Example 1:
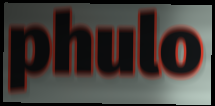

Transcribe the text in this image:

phulo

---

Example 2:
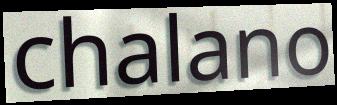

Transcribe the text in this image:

chalano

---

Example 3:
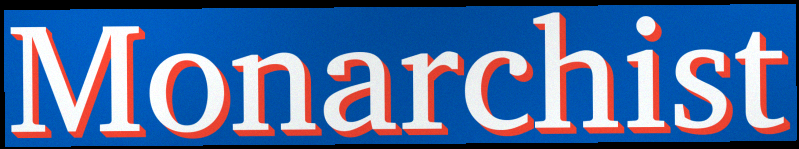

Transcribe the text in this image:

Monarchist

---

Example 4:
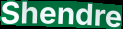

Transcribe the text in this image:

Shendre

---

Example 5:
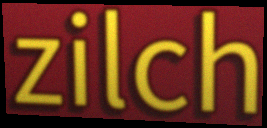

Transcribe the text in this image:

zilch